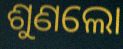
ଶୁଣଲୋ